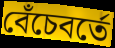
বেঁচেবর্তে